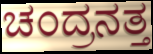
ಚಂದ್ರನತ್ತ